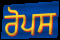
ਰੋਪਸ